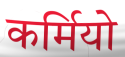
कर्मियो